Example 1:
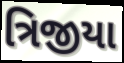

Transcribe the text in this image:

ત્રિજીયા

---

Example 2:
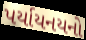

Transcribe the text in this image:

પર્યાયનયનો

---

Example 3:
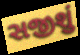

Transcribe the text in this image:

સજીશું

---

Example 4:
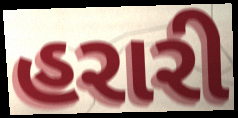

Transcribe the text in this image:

હરારી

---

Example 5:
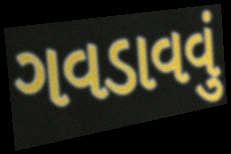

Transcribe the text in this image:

ગવડાવવું